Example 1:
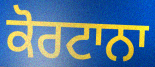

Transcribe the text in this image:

ਕੋਰਟਾਨਾ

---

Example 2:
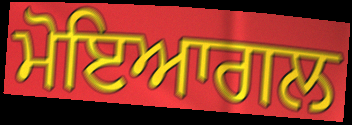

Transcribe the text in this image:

ਮੋਇਆਗਲ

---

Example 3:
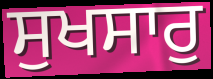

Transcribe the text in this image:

ਸੁਖਸਾਰੁ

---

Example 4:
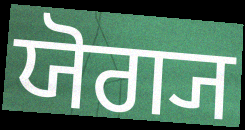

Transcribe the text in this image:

ਯੋਗ੍ਯ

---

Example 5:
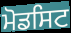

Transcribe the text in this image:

ਮੋਡਸਿਟ